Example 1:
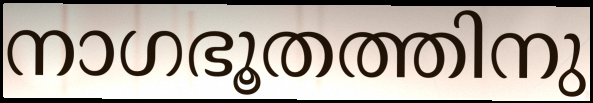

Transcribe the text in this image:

നാഗഭൂതത്തിനു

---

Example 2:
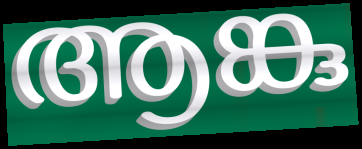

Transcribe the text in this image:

ആങ്കു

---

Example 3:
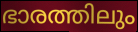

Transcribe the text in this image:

ഭാരത്തിലും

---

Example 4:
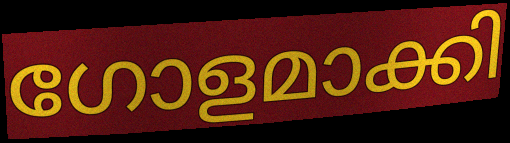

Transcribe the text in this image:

ഗോളമാക്കി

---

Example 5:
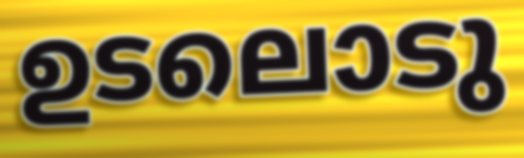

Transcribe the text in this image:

ഉടലൊടു